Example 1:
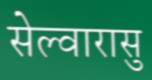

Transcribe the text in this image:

सेल्वारासु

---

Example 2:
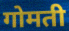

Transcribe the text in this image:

गोमती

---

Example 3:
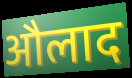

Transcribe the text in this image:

औलाद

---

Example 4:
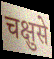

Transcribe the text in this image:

चक्षुसे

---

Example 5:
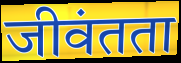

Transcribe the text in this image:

जीवंतता